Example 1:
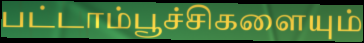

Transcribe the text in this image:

பட்டாம்பூச்சிகளையும்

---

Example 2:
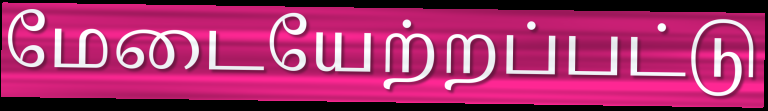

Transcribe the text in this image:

மேடையேற்றப்பட்டு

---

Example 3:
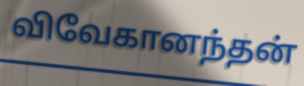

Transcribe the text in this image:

விவேகானந்தன்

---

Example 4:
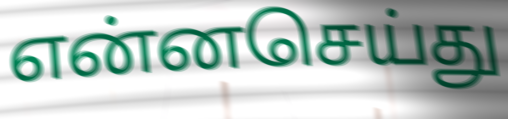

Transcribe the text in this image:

என்னசெய்து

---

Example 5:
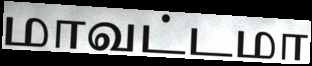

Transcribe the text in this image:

மாவட்டமா